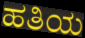
ಹತಿಯ